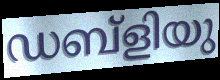
ഡബ്ളിയു